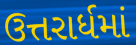
ઉત્તરાર્ધમાં